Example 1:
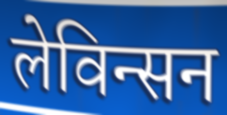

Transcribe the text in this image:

लेविन्सन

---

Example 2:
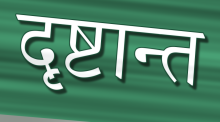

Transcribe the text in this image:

दृष्टान्त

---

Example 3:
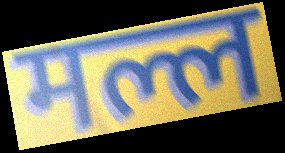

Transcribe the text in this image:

मल्ल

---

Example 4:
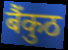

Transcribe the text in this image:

बैंकुठ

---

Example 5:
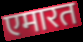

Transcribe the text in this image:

एमारत